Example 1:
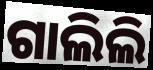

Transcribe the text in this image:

ଗାଲିଲି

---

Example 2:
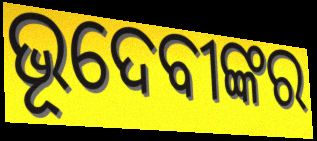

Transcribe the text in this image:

ଭୂଦେବୀଙ୍କର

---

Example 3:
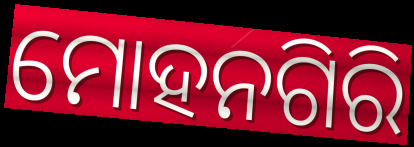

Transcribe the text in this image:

ମୋହନଗିରି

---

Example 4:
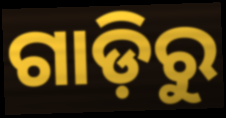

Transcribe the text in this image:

ଗାଡ଼ିରୁ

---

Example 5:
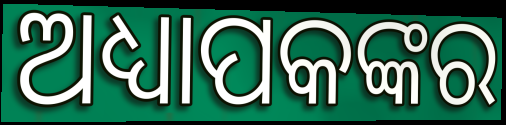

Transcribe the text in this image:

ଅଧ୍ୟାପକଙ୍କର